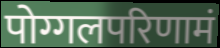
पोग्गलपरिणामं